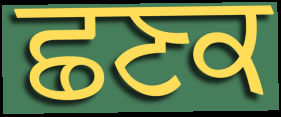
ਛਣਕ